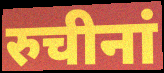
रुचीनां